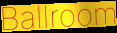
Ballroom